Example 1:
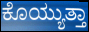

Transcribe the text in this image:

ಕೊಯ್ಯುತ್ತಾ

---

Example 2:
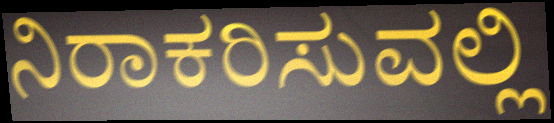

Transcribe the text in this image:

ನಿರಾಕರಿಸುವಲ್ಲಿ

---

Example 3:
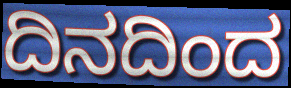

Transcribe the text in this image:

ದಿನದಿಂದ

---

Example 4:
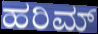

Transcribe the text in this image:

ಹರಿಮ್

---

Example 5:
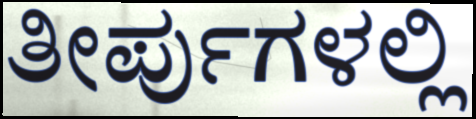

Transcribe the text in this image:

ತೀರ್ಪುಗಳಲ್ಲಿ